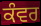
ਕੰਵਰ